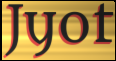
Jyot